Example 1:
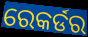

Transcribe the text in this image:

ରେକର୍ଡର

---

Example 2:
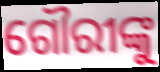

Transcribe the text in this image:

ଗୌରୀଙ୍କୁ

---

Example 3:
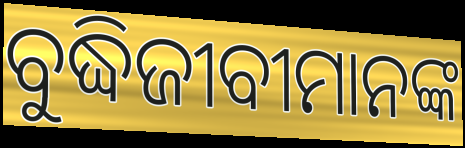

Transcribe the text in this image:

ବୁଦ୍ଧିଜୀବୀମାନଙ୍କ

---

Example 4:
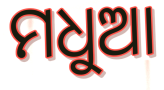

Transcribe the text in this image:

ମଧୁଆ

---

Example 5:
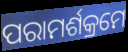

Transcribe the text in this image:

ପରାମର୍ଶକ୍ରମେ